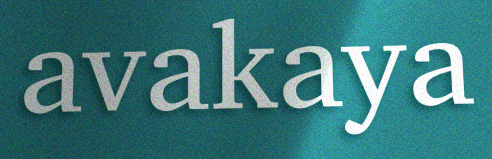
avakaya